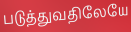
படுத்துவதிலேயே